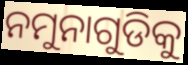
ନମୁନାଗୁଡିକୁ